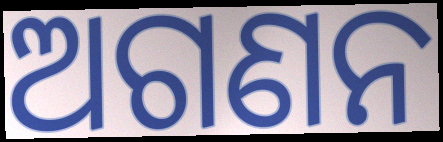
ଅଗଣନ